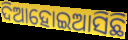
ଦିଆହୋଇଆସିଛି